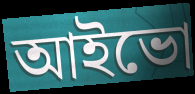
আইভো